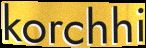
korchhi